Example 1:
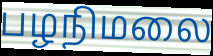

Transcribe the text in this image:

பழநிமலை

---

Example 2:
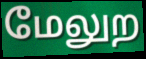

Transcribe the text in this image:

மேலுற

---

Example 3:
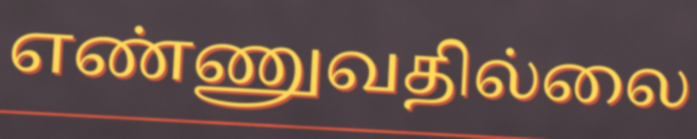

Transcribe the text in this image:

எண்ணுவதில்லை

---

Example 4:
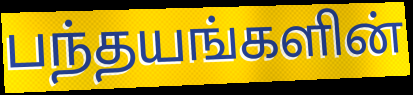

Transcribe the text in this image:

பந்தயங்களின்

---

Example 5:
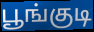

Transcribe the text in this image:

பூங்குடி